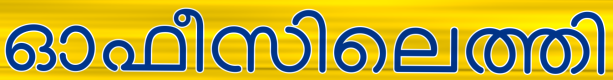
ഓഫീസിലെത്തി